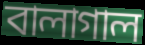
বালাগাল